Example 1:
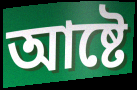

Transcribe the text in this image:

আষ্টে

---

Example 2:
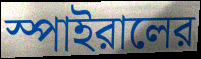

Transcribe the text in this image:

স্পাইরালের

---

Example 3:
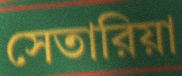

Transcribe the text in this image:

সেতারিয়া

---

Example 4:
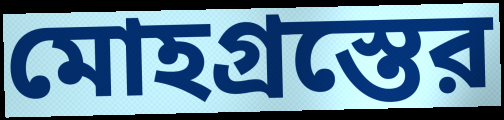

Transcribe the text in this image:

মোহগ্রস্তের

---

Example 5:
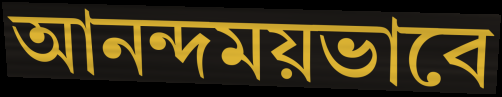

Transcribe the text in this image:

আনন্দময়ভাবে